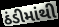
ઠંડીમાંથી